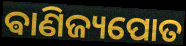
ଵାଣିଜ୍ୟପୋତ